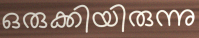
ഒരുക്കിയിരുന്നു